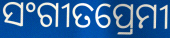
ସଂଗୀତପ୍ରେମୀ